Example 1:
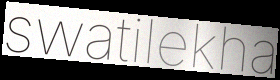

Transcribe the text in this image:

swatilekha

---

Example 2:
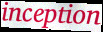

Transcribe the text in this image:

inception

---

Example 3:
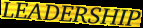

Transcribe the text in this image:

LEADERSHIP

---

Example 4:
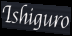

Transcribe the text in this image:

Ishiguro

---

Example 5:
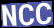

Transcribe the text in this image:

NCC